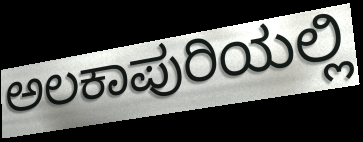
ಅಲಕಾಪುರಿಯಲ್ಲಿ